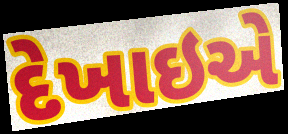
દેખાઇએ